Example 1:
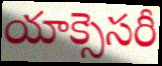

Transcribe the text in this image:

యాక్సెసరీ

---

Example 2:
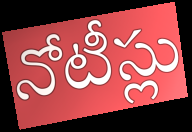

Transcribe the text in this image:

నోటీస్లు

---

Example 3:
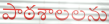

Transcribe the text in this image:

పాఠశాలలను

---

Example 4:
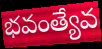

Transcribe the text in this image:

భవంత్యేవ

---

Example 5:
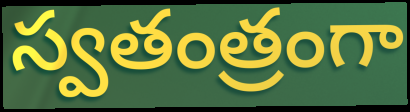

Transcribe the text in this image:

స్వతంత్రంగా